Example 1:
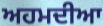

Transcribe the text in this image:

ਅਹਮਦੀਆ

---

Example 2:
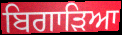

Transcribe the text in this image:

ਬਿਗਾੜਿਆ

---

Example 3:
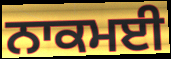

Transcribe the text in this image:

ਨਾਕਮਈ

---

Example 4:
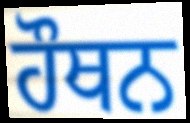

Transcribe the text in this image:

ਹੌਥਨ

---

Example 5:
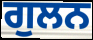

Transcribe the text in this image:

ਗੁਲਨ